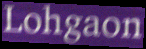
Lohgaon